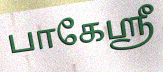
பாகேஸ்ரீ